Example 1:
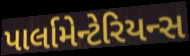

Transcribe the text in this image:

પાર્લામેન્ટેરિયન્સ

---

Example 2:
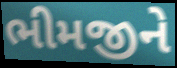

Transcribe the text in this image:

ભીમજીને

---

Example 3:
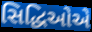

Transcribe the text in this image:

સિદ્ધિઓએ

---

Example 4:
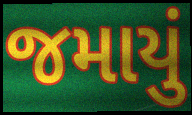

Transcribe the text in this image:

જમાયું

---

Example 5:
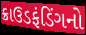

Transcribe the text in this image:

ક્રાઉડફંડિંગનો